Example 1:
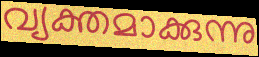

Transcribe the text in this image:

വ്യക്തമാക്കുന്നു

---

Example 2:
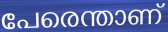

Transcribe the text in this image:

പേരെന്താണ്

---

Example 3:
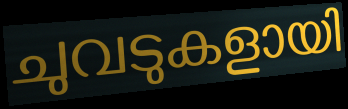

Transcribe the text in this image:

ചുവടുകളായി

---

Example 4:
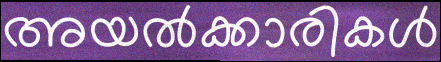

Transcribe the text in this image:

അയൽക്കാരികൾ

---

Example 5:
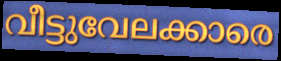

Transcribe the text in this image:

വീട്ടുവേലക്കാരെ